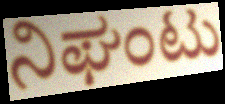
ನಿಘಂಟು